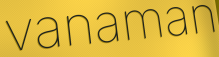
vanaman